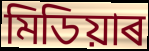
মিডিয়াৰ